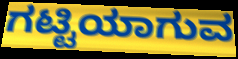
ಗಟ್ಟಿಯಾಗುವ